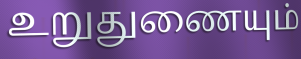
உறுதுணையும்